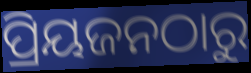
ପ୍ରିୟଜନଠାରୁ